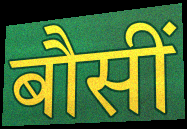
बौसीं